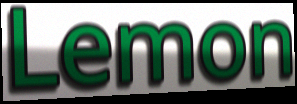
Lemon